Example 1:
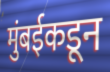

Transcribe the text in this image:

मुंबईकडून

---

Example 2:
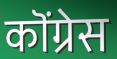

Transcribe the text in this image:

कॊंग्रेस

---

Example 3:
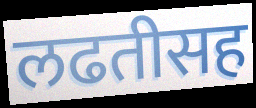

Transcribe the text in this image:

लढतीसह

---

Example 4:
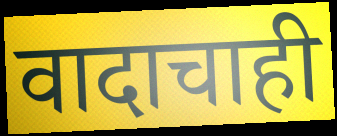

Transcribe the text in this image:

वादाचाही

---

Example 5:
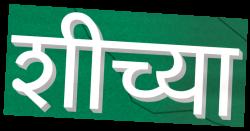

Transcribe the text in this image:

शीच्या